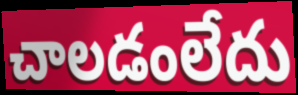
చాలడంలేదు